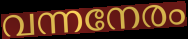
വന്നനേരം